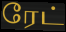
ரேட்